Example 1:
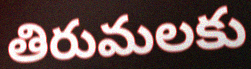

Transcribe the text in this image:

తిరుమలకు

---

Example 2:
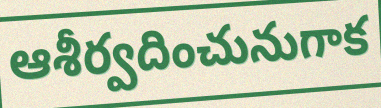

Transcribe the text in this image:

ఆశీర్వదించునుగాక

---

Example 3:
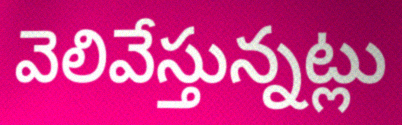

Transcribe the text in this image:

వెలివేస్తున్నట్లు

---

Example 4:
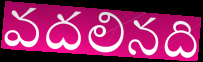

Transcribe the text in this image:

వదలినది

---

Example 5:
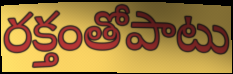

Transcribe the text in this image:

రక్తంతోపాటు